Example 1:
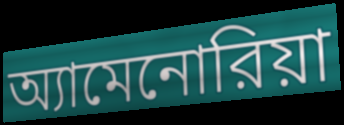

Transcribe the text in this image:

অ্যামেনোরিয়া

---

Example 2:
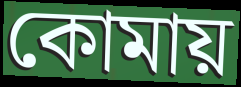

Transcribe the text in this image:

কোমায়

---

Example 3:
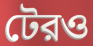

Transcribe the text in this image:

টেরও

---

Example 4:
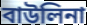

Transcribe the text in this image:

বাউলিনা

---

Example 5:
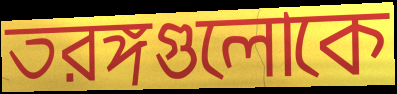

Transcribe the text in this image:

তরঙ্গগুলোকে